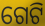
ଗେଟି